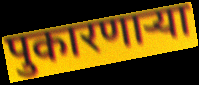
पुकारणार्‍या